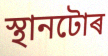
স্থানটোৰ